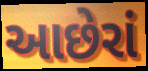
આછેરાં